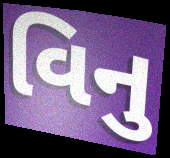
વિનુ